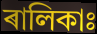
ৰালিকাঃ